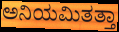
ಅನಿಯಮಿತತ್ತಾ